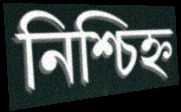
নিশ্চিহ্ন